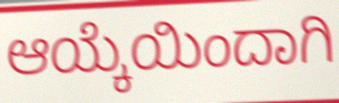
ಆಯ್ಕೆಯಿಂದಾಗಿ